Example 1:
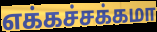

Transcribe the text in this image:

எக்கச்சக்கமா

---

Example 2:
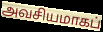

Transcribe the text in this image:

அவசியமாகப்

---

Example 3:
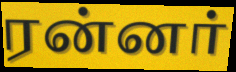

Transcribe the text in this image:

ரன்னர்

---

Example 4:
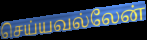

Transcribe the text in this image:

செய்யவல்லேன்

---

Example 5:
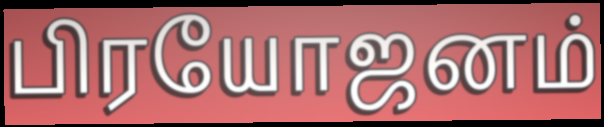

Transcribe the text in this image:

பிரயோஜனம்